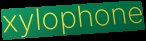
xylophone